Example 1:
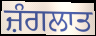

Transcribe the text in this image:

ਜ਼ੰਗਲਾਤ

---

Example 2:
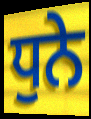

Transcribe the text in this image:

ਧੁਨੇ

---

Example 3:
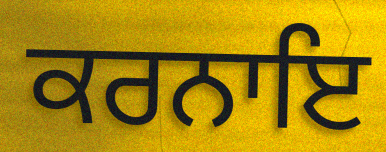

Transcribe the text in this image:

ਕਰਨਾਇ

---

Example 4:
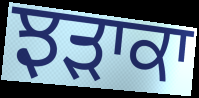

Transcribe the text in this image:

ਝੜਾਕਾ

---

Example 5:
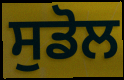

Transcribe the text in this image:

ਸੁਡੋਲ